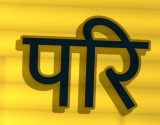
परि